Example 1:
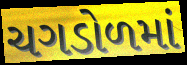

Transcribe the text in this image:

ચગડોળમાં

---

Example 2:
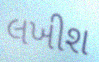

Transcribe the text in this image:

લખીશ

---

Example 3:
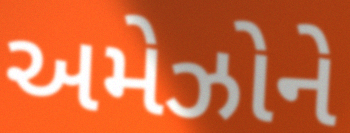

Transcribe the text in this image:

અમેઝોને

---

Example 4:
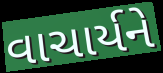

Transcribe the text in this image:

વાચાર્યને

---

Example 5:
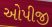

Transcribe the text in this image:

ઓપીજી